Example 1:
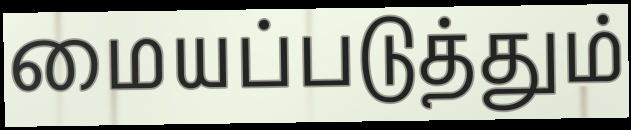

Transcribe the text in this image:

மையப்படுத்தும்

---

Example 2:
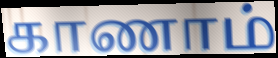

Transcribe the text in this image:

காணாம்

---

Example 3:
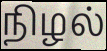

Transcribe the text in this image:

நிழல்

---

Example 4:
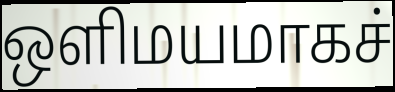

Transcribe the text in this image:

ஒளிமயமாகச்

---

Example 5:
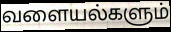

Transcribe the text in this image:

வளையல்களும்